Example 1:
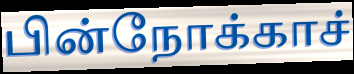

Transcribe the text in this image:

பின்நோக்காச்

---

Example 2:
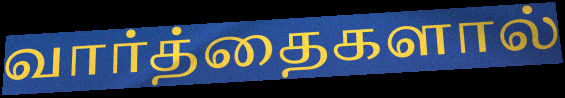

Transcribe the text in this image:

வார்த்தைகளால்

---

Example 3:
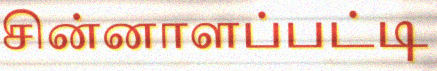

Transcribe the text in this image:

சின்னாளப்பட்டி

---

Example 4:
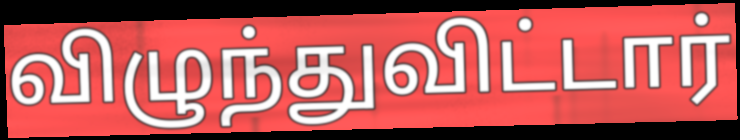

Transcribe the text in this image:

விழுந்துவிட்டார்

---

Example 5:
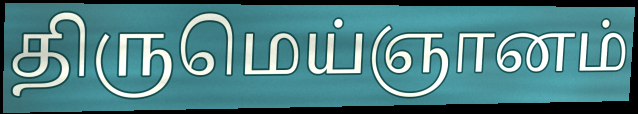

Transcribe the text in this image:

திருமெய்ஞானம்